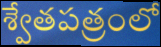
శ్వేతపత్రంలో